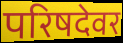
परिषदेवर